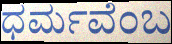
ಧರ್ಮವೆಂಬ